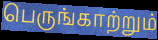
பெருங்காற்றும்